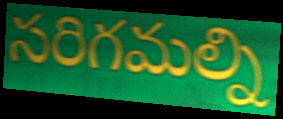
సరిగమల్ని